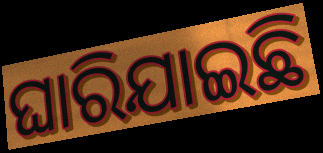
ଘାରିଯାଇଛି